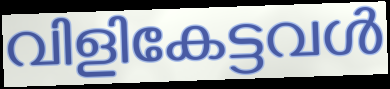
വിളികേട്ടവൾ